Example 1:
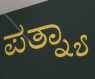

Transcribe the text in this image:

ಪತ್ನ್ಯಾ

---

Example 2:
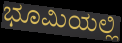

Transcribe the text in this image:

ಭೂಮಿಯಲ್ಲಿ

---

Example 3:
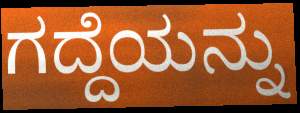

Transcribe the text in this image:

ಗದ್ದೆಯನ್ನು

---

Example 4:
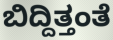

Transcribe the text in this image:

ಬಿದ್ದಿತ್ತಂತೆ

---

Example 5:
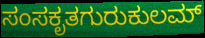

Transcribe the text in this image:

ಸಂಸಕೃತಗುರುಕುಲಮ್